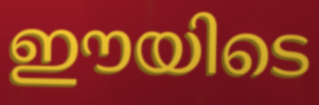
ഈയിടെ